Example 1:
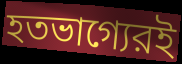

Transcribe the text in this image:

হতভাগ্যেরই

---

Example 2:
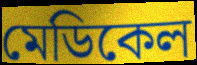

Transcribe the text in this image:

মেডিকেল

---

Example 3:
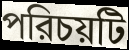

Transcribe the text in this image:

পরিচয়টি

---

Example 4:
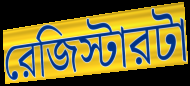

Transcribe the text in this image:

রেজিস্টারটা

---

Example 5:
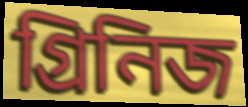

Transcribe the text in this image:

গ্রিনিজ